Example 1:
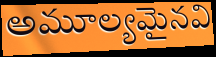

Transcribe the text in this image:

అమూల్యమైనవి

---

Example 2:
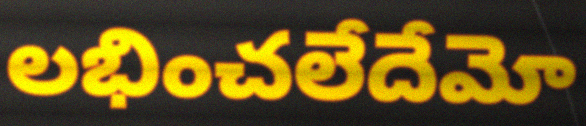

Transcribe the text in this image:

లభించలేదేమో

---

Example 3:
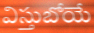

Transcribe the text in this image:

విస్తుబోయే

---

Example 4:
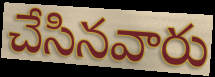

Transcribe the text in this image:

చేసినవారు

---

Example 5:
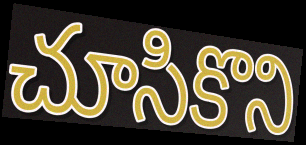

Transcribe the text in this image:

చూసికొని